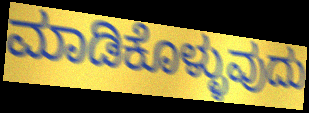
ಮಾಡಿಕೊಳ್ಳುವುದು